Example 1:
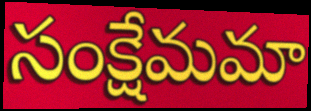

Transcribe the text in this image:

సంక్షేమమా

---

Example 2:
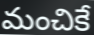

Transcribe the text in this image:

మంచికే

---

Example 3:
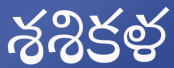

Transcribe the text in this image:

శశికళ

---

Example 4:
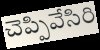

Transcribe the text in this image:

చెప్పివేసిరి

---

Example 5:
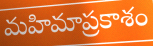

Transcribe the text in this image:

మహిమాప్రకాశం